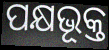
ପକ୍ଷଭୂକ୍ତ